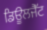
ਡਿਊਲਜੈੱਟ